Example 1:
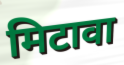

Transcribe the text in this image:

मिटावा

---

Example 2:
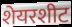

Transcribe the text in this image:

शेयरशीट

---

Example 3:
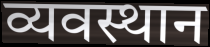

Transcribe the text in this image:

व्यवस्थान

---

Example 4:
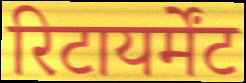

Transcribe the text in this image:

रिटायर्मेंट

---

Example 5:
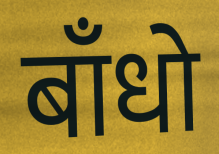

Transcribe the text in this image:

बाँधो